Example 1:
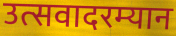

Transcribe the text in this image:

उत्सवादरम्यान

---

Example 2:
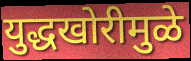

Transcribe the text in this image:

युद्धखोरीमुळे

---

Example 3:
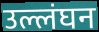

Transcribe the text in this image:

उल्लंघन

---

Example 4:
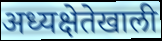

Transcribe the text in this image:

अध्यक्षेतेखाली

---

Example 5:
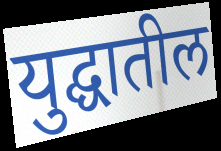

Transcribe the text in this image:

युद्घातील